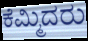
ಕೆಮ್ಮಿದರು